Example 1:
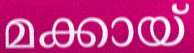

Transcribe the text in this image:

മക്കായ്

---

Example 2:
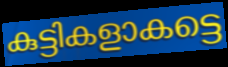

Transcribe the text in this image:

കുട്ടികളാകട്ടെ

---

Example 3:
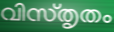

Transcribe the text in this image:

വിസ്തൃതം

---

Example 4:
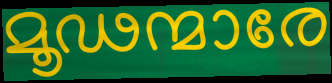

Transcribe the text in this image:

മൂഢന്മാരേ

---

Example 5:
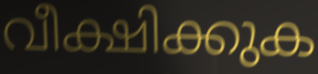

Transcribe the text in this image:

വീക്ഷിക്കുക